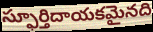
స్ఫూర్తిదాయకమైనది